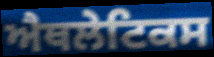
ਐਥਲੇਟਿਕਸ